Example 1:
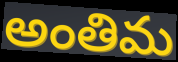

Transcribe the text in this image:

అంతిమ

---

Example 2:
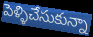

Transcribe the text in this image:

పెళ్ళిచేసుకున్నా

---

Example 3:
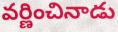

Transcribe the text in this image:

వర్ణించినాడు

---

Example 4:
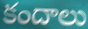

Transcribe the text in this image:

కందాలు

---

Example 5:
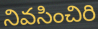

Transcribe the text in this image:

నివసించిరి